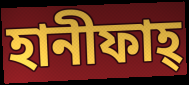
হানীফাহ্